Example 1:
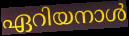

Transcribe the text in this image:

ഏറിയനാൾ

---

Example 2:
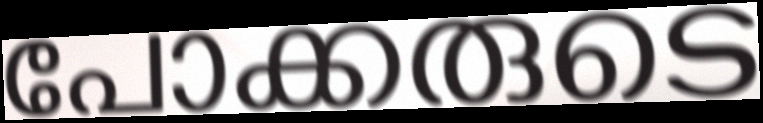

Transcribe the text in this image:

പോക്കരുടെ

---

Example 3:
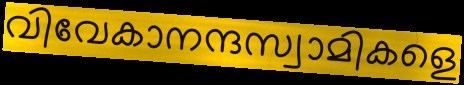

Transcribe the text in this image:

വിവേകാനന്ദസ്വാമികളെ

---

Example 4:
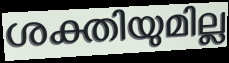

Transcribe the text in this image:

ശക്തിയുമില്ല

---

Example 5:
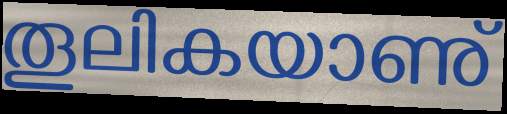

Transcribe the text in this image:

തൂലികയാണു്